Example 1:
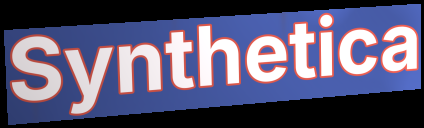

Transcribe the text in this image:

Synthetica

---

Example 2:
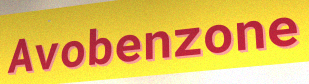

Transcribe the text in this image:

Avobenzone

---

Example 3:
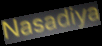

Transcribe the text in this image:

Nasadiya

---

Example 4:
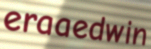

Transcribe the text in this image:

eraaedwin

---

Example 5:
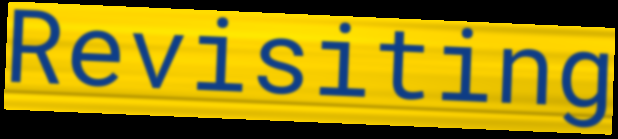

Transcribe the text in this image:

Revisiting